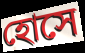
হোসে